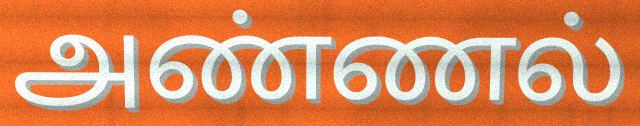
அண்ணல்